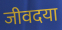
जीवदया